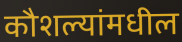
कौशल्यांमधील